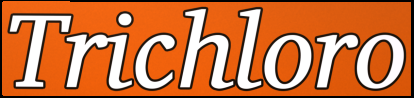
Trichloro